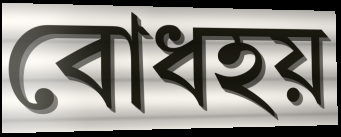
বোধহয়